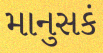
માનુસકં